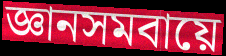
জ্ঞানসমবায়ে